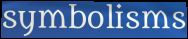
symbolisms